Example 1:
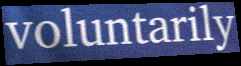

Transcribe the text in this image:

voluntarily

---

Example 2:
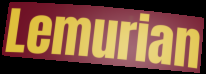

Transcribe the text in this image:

Lemurian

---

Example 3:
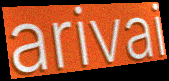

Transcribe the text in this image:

arivai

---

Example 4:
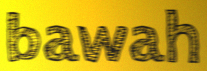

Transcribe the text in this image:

bawah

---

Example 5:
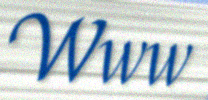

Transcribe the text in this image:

Www